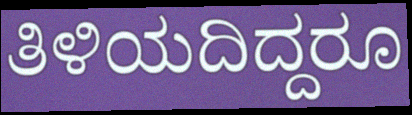
ತಿಳಿಯದಿದ್ದರೂ